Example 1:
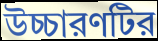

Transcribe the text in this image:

উচ্চারণটির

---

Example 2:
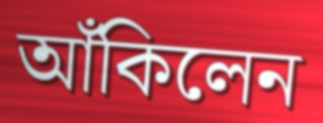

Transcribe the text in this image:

আঁকিলেন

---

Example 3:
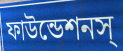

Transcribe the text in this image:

ফাউন্ডেশনস্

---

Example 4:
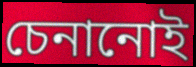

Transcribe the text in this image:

চেনানোই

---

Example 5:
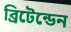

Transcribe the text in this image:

ব্রিটেন্ডেন